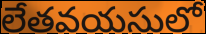
లేతవయసులో